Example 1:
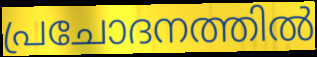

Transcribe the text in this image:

പ്രചോദനത്തിൽ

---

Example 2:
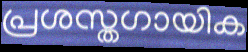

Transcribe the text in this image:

പ്രശസ്തഗായിക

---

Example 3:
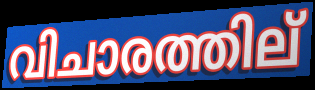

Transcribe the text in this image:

വിചാരത്തില്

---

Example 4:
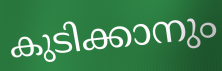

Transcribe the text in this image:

കുടിക്കാനും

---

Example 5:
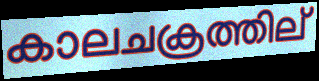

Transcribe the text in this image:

കാലചക്രത്തില്